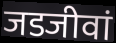
जडजीवां